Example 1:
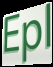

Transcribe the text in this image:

Epl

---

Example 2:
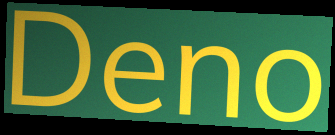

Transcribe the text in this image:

Deno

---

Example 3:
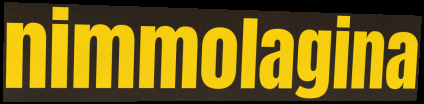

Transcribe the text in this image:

nimmolagina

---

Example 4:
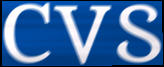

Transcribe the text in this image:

cvs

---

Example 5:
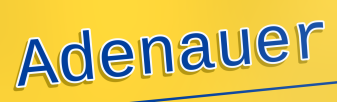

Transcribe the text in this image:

Adenauer